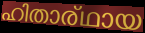
ഹിതാര്ഥായ